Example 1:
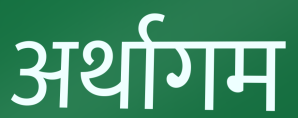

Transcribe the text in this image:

अर्थागम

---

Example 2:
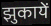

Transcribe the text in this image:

झुकायें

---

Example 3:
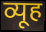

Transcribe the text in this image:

व्यूह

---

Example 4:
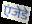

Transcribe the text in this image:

एंजेडे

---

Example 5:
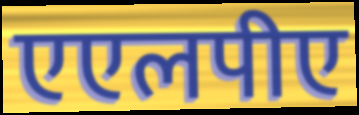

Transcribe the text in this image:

एएलपीए